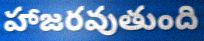
హాజరవుతుంది